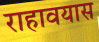
राहावयास